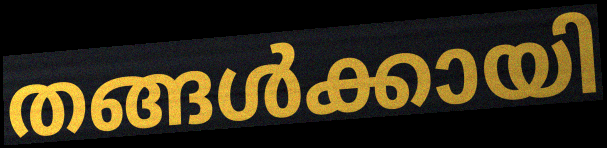
തങ്ങൾക്കായി